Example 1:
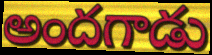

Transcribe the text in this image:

అందగాడు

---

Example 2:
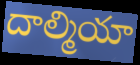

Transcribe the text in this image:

దాల్మియా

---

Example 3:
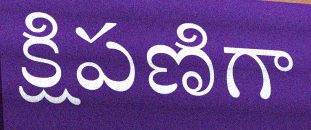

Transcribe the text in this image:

క్షిపణిగా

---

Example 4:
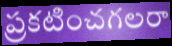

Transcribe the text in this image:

ప్రకటించగలరా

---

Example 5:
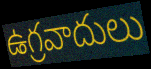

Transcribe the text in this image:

ఉగ్రవాదులు